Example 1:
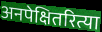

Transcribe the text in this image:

अनपेक्षितरित्या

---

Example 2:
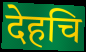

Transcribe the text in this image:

देहचि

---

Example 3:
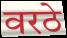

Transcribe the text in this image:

वरठे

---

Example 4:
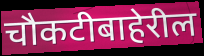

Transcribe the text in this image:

चौकटीबाहेरील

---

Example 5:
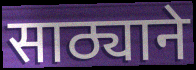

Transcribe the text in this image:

साठ्याने